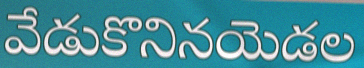
వేడుకొనినయెడల